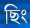
ছিং